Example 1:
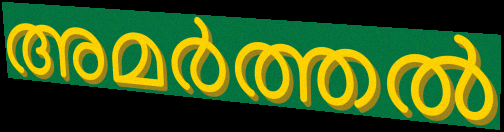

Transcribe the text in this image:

അമർത്തൽ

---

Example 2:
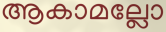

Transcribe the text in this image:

ആകാമല്ലോ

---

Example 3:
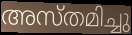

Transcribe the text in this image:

അസ്തമിച്ചു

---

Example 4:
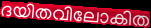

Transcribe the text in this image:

ദയിതവിലോകിത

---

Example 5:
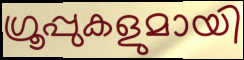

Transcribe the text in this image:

ഗ്രൂപ്പുകളുമായി